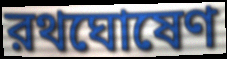
রথঘোষেণ